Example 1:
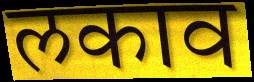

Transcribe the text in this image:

लकाव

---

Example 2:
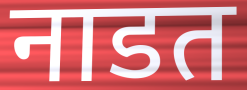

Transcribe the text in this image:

नाडत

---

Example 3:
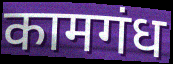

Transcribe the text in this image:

कामगंध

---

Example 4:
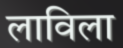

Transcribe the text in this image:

लाविला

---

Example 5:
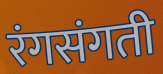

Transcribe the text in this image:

रंगसंगती